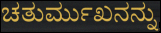
ಚತುರ್ಮುಖನನ್ನು